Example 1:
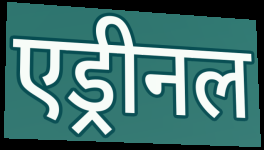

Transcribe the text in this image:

एड्रीनल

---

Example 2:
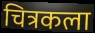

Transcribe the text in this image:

चित्रकला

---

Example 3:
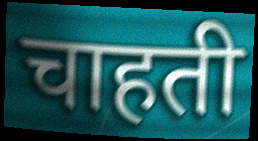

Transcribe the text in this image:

चाहती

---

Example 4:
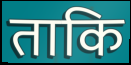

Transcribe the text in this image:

ताकि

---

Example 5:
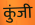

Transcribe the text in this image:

कुंजी